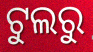
ଟୁଲରୁ